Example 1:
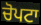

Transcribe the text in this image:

ਚੋਪਟਾ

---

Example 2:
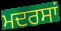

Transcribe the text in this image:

ਮਦਰਸਾਂ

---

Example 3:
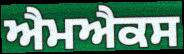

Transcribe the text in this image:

ਐਮਐਕਸ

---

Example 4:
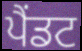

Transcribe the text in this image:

ਪੈਂਡਟ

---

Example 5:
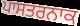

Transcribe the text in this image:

ਪਾਸਤਰਨਾਕ